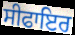
ਸੀਫਾਇਰ